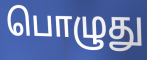
பொழுது